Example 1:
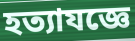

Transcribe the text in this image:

হত্যাযজ্ঞে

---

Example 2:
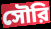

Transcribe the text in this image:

সৌরি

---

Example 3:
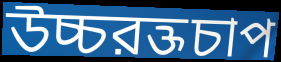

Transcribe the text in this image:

উচ্চরক্তচাপ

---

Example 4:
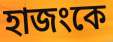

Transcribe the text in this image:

হাজংকে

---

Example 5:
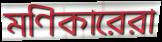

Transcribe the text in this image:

মণিকারেরা